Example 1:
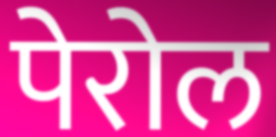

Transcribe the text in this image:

पेरोल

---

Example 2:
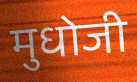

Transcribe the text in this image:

मुधोजी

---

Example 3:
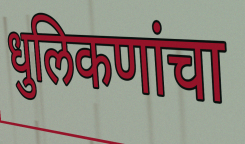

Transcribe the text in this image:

धुलिकणांचा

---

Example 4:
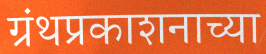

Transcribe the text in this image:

ग्रंथप्रकाशनाच्या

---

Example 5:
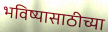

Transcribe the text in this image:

भविष्यासाठीच्या